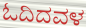
ಓದಿದವಳ